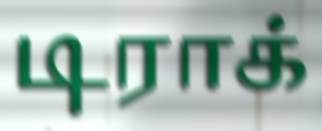
டிராக்